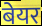
बेयर